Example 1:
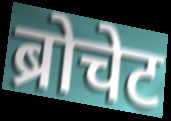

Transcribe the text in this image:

ब्रोचेट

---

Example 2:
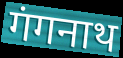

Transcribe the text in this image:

गंगनाथ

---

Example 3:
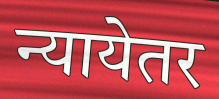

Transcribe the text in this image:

न्यायेतर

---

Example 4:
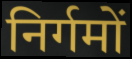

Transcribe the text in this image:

निर्गमों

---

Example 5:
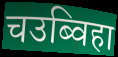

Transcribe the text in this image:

चउब्विहा